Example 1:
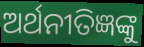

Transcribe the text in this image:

ଅର୍ଥନୀତିଜ୍ଞଙ୍କୁ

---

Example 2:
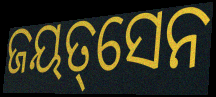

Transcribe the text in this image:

ଜୟତ୍‌ସେନ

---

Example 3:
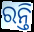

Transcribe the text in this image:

ରନ୍ତି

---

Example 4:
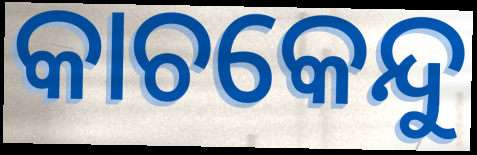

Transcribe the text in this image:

କାଚକେନ୍ଦୁ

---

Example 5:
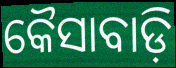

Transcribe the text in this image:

କୈସାବାଡ଼ି